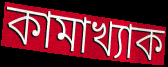
কামাখ্যাক